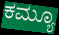
ಕಮ್ಯೂ